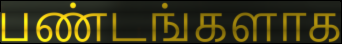
பண்டங்களாக